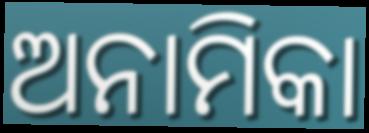
ଅନାମିକା